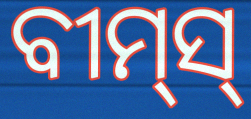
ବୀମ୍‌ସ୍